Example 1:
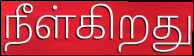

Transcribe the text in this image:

நீள்கிறது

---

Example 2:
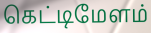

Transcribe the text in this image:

கெட்டிமேளம்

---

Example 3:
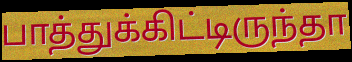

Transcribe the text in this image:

பாத்துக்கிட்டிருந்தா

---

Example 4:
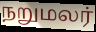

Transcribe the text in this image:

நறுமலர்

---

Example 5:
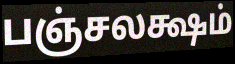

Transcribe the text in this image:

பஞ்சலக்ஷம்